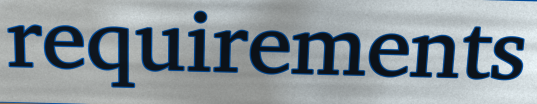
requirements